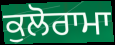
ਕੁਲੋਰਾਮਾ